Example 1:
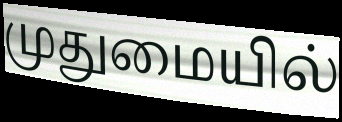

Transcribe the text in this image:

முதுமையில்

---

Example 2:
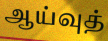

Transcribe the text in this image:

ஆய்வுத்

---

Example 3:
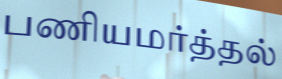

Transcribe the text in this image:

பணியமர்த்தல்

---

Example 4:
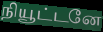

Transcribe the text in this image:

நியூட்டனே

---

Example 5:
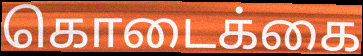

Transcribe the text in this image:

கொடைக்கை